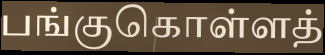
பங்குகொள்ளத்